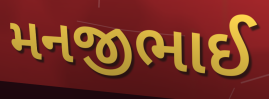
મનજીભાઈ